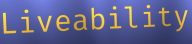
Liveability